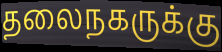
தலைநகருக்கு